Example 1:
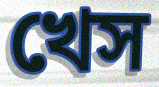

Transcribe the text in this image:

খেস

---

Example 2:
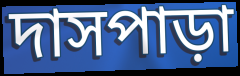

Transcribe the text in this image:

দাসপাড়া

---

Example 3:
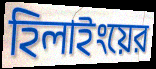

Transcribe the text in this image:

হিলাইংয়ের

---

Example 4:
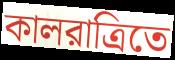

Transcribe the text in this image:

কালরাত্রিতে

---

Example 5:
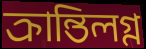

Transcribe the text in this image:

ক্রান্তিলগ্ন